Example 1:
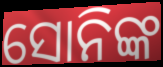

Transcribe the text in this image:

ସୋନିଙ୍କ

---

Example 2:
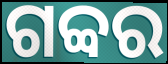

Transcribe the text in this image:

ଗବ୍ବର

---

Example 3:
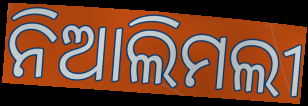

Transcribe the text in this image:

ନିଆଲିମଲୀ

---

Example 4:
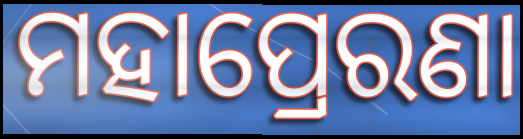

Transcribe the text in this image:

ମହାପ୍ରେରଣା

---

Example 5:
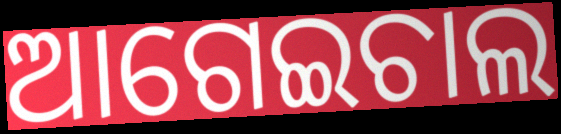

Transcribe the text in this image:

ଆଗେଇଚାଲ